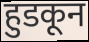
हुडकून